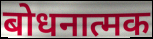
बोधनात्मक